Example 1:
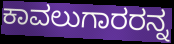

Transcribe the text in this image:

ಕಾವಲುಗಾರರನ್ನ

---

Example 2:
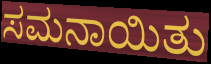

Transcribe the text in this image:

ಸಮನಾಯಿತು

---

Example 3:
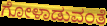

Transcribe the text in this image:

ಗೋಳಾಡುವಂತೆ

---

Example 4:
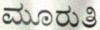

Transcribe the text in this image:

ಮೂರುತಿ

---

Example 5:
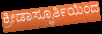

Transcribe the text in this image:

ಕ್ರೀಡಾಸ್ಫೂರ್ತಿಯಿಂದ